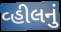
વ્હીલનું